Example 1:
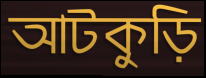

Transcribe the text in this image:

আটকুড়ি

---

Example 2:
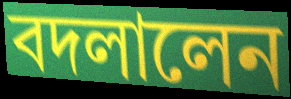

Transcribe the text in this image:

বদলালেন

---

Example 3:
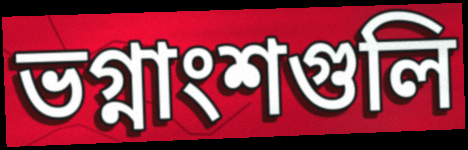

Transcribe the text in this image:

ভগ্নাংশগুলি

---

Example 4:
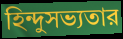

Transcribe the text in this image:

হিন্দুসভ্যতার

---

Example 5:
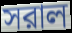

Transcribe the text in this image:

সরাল